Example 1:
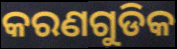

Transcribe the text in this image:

କରଣଗୁଡିକ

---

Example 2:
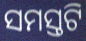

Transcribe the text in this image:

ସମସ୍ତଟି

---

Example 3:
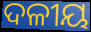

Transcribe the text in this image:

ଦଳୀୟ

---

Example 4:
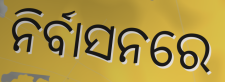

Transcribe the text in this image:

ନିର୍ବାସନରେ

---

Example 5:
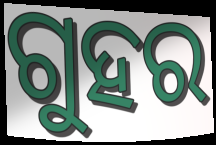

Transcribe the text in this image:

ଗୁହର